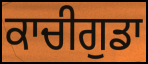
ਕਾਚੀਗੁਡਾ